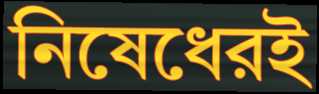
নিষেধেরই